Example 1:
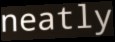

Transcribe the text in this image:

neatly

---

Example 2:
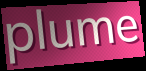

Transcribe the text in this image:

plume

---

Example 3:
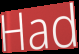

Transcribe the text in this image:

Had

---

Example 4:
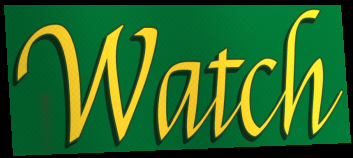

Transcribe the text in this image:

Watch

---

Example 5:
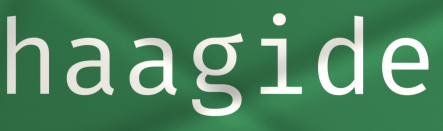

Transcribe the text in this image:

haagide